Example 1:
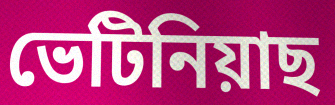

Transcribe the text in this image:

ভেটিনিয়াছ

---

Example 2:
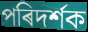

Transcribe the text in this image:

পৰিদৰ্শক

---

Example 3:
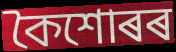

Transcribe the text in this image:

কৈশোৰৰ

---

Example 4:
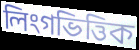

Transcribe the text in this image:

লিংগভিত্তিক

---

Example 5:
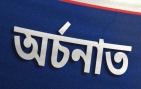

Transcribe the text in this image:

অৰ্চনাত